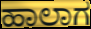
ಹಾಲಾಗ